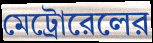
মেট্রোরেলের